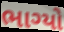
ભાગ્યો